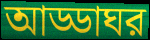
আড্ডাঘর